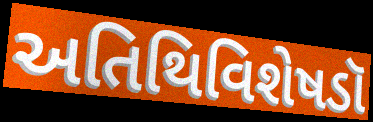
અતિથિવિશેષડૉ